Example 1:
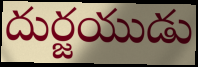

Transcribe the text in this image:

దుర్జయుడు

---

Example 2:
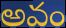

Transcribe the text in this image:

అవం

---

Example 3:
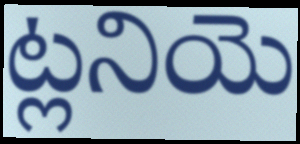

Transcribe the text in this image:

ట్లనియె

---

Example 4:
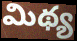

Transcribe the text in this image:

మిథ్య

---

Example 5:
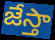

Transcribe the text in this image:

జేస్తా